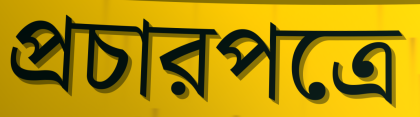
প্রচারপত্রে